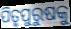
ପିତୃପୁରୁଷକୁ